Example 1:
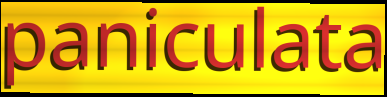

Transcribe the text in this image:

paniculata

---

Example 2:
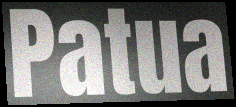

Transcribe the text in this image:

Patua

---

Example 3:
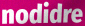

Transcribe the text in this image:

nodidre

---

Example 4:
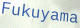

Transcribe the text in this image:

Fukuyama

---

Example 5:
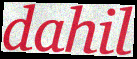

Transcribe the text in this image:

dahil